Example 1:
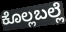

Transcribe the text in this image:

ಕೊಲ್ಲಬಲ್ಲೆ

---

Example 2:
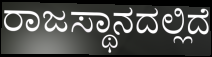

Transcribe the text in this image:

ರಾಜಸ್ಥಾನದಲ್ಲಿದೆ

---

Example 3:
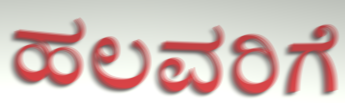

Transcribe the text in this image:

ಹಲವರಿಗೆ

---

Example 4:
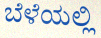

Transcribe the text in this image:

ಬೆಳೆಯಲ್ಲಿ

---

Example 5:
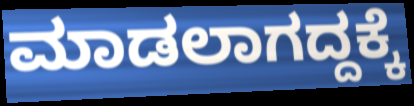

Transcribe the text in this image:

ಮಾಡಲಾಗದ್ದಕ್ಕೆ